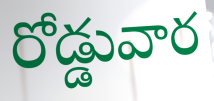
రోడ్డువార